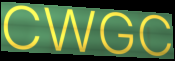
CWGC